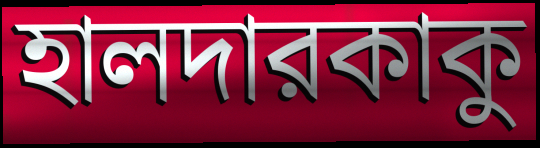
হালদারকাকু